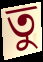
তু